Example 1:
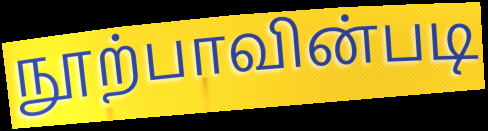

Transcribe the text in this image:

நூற்பாவின்படி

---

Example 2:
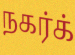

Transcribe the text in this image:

நகர்க்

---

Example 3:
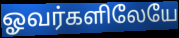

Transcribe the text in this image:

ஓவர்களிலேயே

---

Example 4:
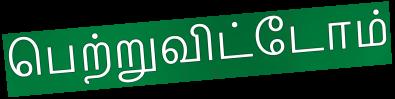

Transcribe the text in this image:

பெற்றுவிட்டோம்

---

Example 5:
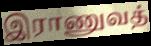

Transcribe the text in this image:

இராணுவத்